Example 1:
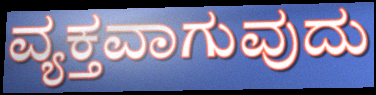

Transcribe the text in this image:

ವ್ಯಕ್ತವಾಗುವುದು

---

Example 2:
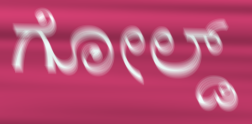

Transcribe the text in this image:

ಗೋಲ್ಡ್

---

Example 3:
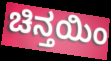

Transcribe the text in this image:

ಚಿನ್ತಯಿಂ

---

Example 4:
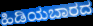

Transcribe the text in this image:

ಹಿಡಿಯಬಾರದ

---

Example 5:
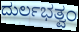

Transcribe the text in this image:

ದುರ್ಲಭತ್ವಂ